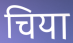
चिया